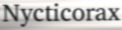
Nycticorax